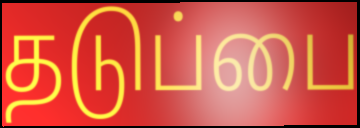
தடுப்பை